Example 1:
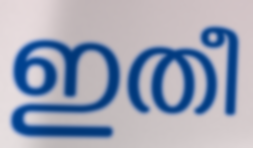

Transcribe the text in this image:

ഇതീ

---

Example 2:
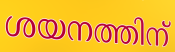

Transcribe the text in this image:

ശയനത്തിന്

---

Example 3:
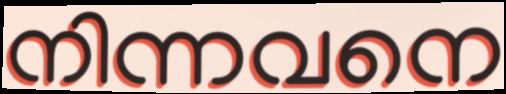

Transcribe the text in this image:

നിന്നവനെ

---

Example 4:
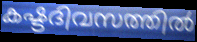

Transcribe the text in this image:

കഷ്ടദിവസത്തിൽ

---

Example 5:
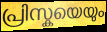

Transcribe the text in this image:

പ്രിസ്കയെയും